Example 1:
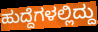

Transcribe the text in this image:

ಹುದ್ದೆಗಳಲ್ಲಿದ್ದು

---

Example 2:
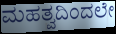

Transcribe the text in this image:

ಮಹತ್ವದಿಂದಲೇ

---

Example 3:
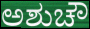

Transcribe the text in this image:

ಅಶುಚೌ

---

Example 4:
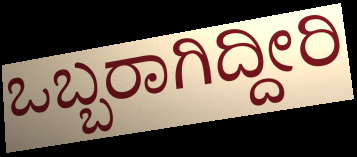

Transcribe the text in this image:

ಒಬ್ಬರಾಗಿದ್ದೀರಿ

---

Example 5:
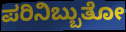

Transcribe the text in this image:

ಪರಿನಿಬ್ಬುತೋ